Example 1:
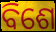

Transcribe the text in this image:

ବିଶେ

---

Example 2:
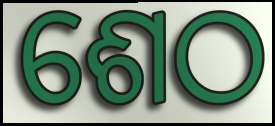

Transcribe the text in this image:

ଶେଠ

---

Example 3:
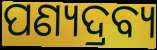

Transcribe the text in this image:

ପଣ୍ୟଦ୍ରବ୍ୟ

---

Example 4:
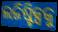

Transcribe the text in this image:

ଲଜିଷ୍ଟିକ୍ସକୁ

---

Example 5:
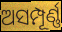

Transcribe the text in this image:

ଅସମ୍ପୂର୍ଣ୍ଣ